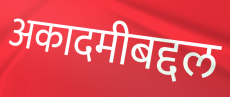
अकादमीबद्दल